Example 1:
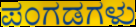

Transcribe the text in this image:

ಪಂಗಡಗಳು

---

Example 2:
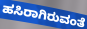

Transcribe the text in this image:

ಹಸಿರಾಗಿರುವಂತೆ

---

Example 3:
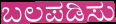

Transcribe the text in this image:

ಬಲಪಡಿಸು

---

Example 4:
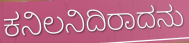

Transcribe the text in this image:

ಕನಿಲನಿದಿರಾದನು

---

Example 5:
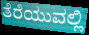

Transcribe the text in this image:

ತೆರೆಯುವಲ್ಲಿ